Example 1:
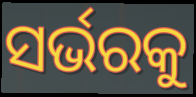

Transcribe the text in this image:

ସର୍ଭରକୁ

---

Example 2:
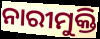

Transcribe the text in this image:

ନାରୀମୁକ୍ତି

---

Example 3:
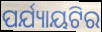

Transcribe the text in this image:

ପର୍ଯ୍ୟାୟଟିର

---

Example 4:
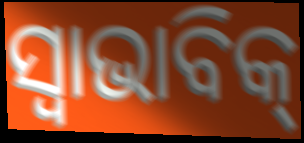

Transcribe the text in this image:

ସ୍ଵାଭାବିକ୍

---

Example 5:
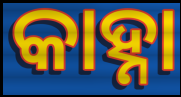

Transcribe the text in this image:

କାହ୍ନା